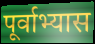
पूर्वाभ्यास